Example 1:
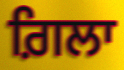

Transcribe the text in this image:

ਗ਼ਿਲਾ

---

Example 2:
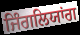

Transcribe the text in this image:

ਜਿੰਗਲਿਯਾਂਗ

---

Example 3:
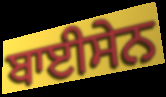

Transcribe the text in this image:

ਬਾਈਸੇਨ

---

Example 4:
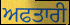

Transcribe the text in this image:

ਅਫਤਾਰੀ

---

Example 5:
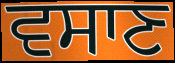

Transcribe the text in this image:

ਵਸਾਣ